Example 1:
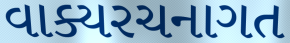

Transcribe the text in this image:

વાક્યરચનાગત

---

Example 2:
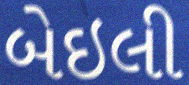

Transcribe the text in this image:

બેઇલી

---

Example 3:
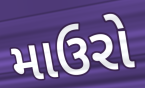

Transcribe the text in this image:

માઉરો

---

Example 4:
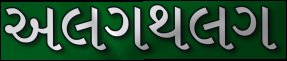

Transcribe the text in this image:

અલગથલગ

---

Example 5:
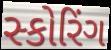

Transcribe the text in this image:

સ્કોરિંગ